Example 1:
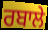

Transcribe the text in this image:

ਰਬਾਲੇ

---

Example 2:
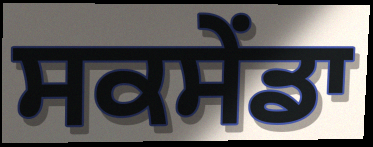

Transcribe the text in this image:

ਸਕਸੇਂਡਾ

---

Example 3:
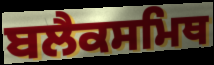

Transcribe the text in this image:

ਬਲੈਕਸਮਿਥ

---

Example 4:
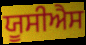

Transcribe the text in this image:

ਯੂਸੀਐਸ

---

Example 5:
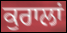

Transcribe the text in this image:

ਕੁਰਾਲਾਂ